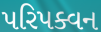
પરિપક્વન